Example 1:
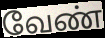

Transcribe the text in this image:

வேண்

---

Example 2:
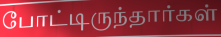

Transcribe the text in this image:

போட்டிருந்தார்கள்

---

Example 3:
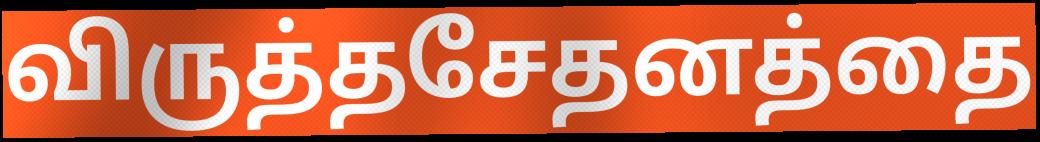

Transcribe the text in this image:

விருத்தசேதனத்தை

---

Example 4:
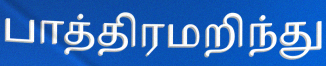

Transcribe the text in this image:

பாத்திரமறிந்து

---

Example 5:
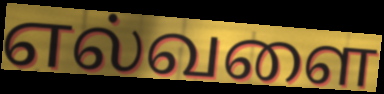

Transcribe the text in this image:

எல்வளை